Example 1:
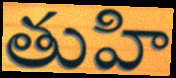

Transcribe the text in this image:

తుహి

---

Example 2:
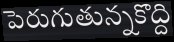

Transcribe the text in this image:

పెరుగుతున్నకొద్ది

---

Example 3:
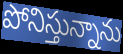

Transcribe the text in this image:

పోనిస్తున్నాను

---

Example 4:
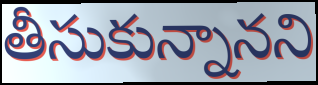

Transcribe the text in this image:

తీసుకున్నానని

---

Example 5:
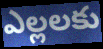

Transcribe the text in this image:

ఎల్లలకు